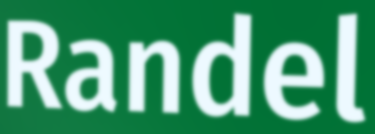
Randel